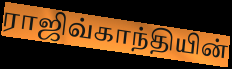
ராஜிவ்காந்தியின்